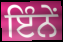
ਇੰਨੇਂ